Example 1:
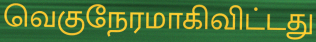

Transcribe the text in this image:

வெகுநேரமாகிவிட்டது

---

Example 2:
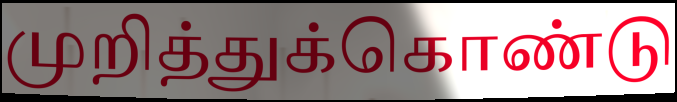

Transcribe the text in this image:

முறித்துக்கொண்டு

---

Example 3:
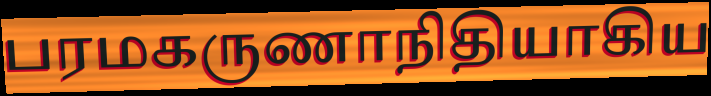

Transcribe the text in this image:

பரமகருணாநிதியாகிய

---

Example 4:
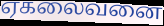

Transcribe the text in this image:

ஏகலைவனை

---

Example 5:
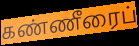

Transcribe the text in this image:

கண்ணீரைப்